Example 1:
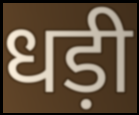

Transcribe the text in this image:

धड़ी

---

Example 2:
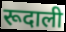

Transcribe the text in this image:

रूदाली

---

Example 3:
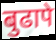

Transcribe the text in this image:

बुढापे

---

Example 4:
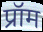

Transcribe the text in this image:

प्रॉम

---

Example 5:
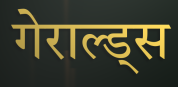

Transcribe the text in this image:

गेराल्ड्स